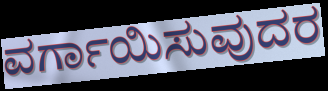
ವರ್ಗಾಯಿಸುವುದರ